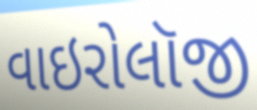
વાઇરોલૉજી